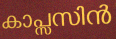
കാപ്സസിൻ